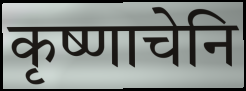
कृष्णाचेनि